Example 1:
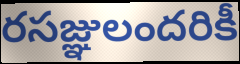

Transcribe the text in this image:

రసజ్ఞులందరికీ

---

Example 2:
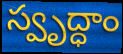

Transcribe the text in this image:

స్వృద్ధాం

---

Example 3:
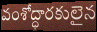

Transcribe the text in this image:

వంశోద్ధారకులైన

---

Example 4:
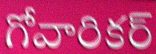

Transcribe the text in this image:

గోవారికర్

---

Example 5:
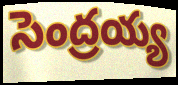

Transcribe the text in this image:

సెంద్రయ్య